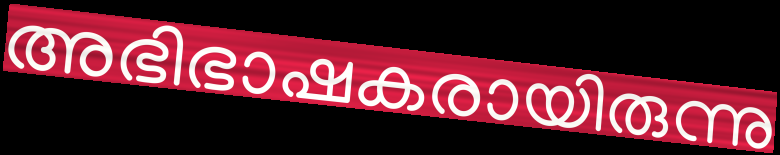
അഭിഭാഷകരായിരുന്നു